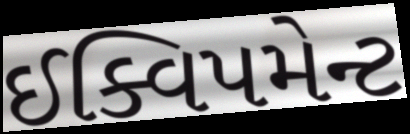
ઈક્વિપમેન્ટ